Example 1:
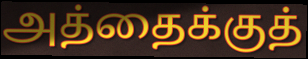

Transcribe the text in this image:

அத்தைக்குத்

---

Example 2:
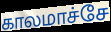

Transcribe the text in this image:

காலமாச்சே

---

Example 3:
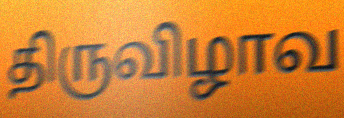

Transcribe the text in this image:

திருவிழாவ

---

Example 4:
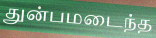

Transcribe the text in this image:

துன்பமடைந்த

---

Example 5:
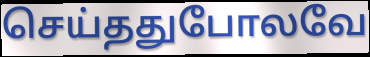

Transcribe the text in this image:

செய்ததுபோலவே